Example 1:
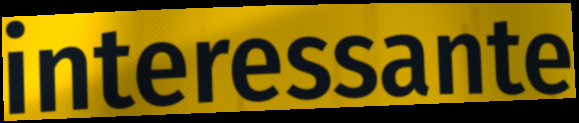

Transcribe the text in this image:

interessante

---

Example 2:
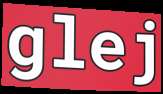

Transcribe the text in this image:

glej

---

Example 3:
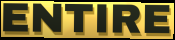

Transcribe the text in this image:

ENTIRE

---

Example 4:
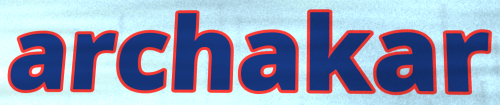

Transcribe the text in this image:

archakar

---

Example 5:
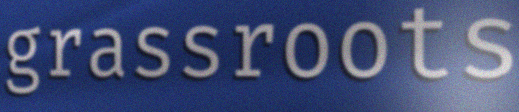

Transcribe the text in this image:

grassroots